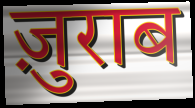
ज़ुराब